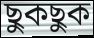
ছুকছুক